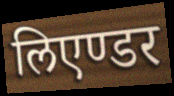
लिएण्डर